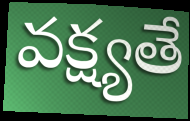
వక్ష్యతే